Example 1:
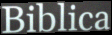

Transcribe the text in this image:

Biblica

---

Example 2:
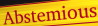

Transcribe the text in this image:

Abstemious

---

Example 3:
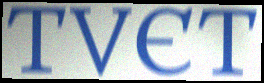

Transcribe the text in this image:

TVET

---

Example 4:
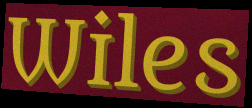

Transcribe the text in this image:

Wiles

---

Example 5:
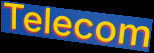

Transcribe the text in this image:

Telecom